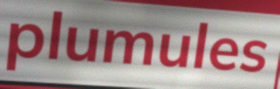
plumules